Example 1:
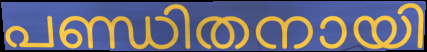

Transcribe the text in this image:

പണ്ഡിതനായി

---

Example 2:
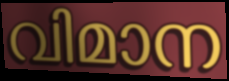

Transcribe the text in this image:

വിമാന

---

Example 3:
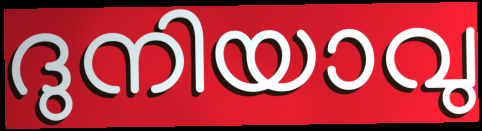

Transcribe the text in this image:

ദുനിയാവു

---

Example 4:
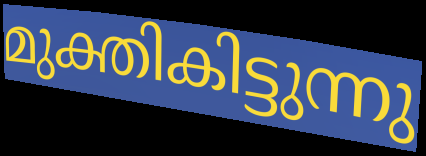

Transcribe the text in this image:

മുക്തികിട്ടുന്നു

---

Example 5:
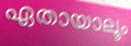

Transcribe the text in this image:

ഏതായാലൂം